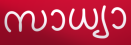
സാധ്യാ